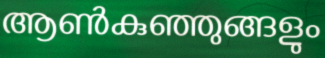
ആൺകുഞ്ഞുങ്ങളും